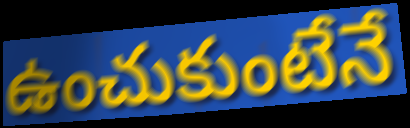
ఉంచుకుంటేనే